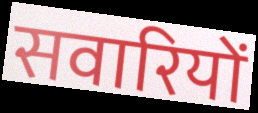
सवारियों